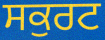
ਸਕੁਰਟ